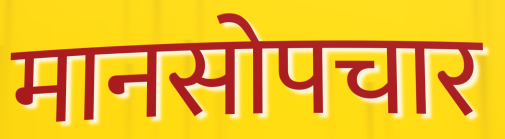
मानसोपचार